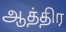
ஆத்திர